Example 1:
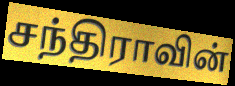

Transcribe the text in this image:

சந்திராவின்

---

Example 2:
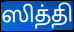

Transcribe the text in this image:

ஸித்தி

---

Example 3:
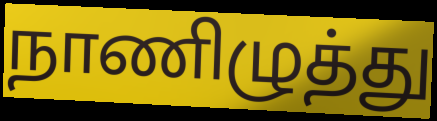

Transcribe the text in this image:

நாணிழுத்து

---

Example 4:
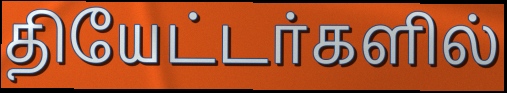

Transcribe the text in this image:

தியேட்டர்களில்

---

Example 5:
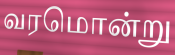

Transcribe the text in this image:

வரமொன்று